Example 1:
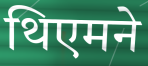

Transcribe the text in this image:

थिएमने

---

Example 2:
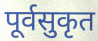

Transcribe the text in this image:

पूर्वसुकृत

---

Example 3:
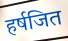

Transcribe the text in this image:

हर्षजित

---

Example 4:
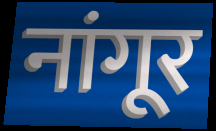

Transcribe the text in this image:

नांगूर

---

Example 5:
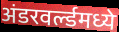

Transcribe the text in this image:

अंडरवर्ल्डमध्ये